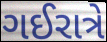
ગઈરાત્રે